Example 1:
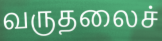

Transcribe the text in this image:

வருதலைச்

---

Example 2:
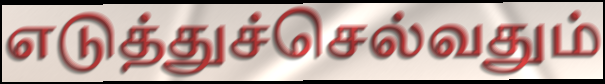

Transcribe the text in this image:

எடுத்துச்செல்வதும்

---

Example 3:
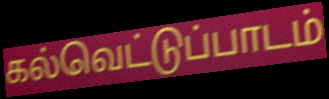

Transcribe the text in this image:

கல்வெட்டுப்பாடம்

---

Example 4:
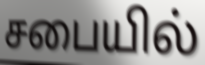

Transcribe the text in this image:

சபையில்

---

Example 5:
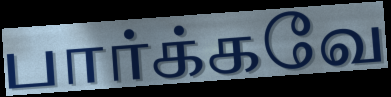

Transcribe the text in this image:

பார்க்கவே